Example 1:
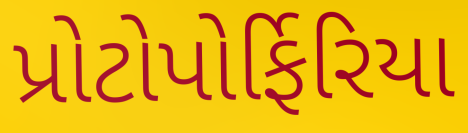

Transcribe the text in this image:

પ્રોટોપોર્ફિરિયા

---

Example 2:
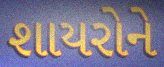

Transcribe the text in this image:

શાયરોને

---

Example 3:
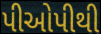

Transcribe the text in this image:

પીઓપીથી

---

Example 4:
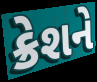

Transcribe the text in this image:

ક્રેશને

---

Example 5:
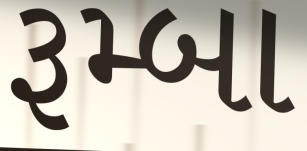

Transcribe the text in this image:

રૂમ્બા